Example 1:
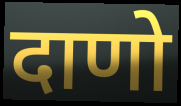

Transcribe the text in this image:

दाणो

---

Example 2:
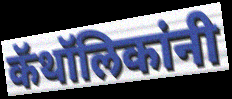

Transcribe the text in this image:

कॅथॉलिकांनी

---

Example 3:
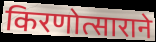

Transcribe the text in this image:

किरणोत्साराने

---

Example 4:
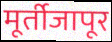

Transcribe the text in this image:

मूर्तीजापूर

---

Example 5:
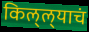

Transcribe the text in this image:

किल्ल्याचं